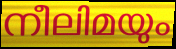
നീലിമയും